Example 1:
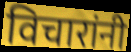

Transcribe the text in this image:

विचारांनी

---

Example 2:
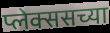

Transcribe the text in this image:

प्लेक्ससच्या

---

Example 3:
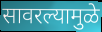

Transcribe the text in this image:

सावरल्यामुळे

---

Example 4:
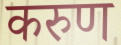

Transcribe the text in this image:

करुण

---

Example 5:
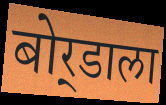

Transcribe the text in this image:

बोर्डाला